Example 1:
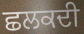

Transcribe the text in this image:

ਛਲਕਦੀ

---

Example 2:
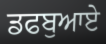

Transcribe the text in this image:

ਡਫਬੁਆਏ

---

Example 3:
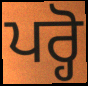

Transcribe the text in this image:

ਪਰ੍ਹੋ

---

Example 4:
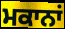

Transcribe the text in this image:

ਮਕਾਨਾਂ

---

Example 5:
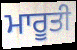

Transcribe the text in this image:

ਮਾਰੂਤੀ